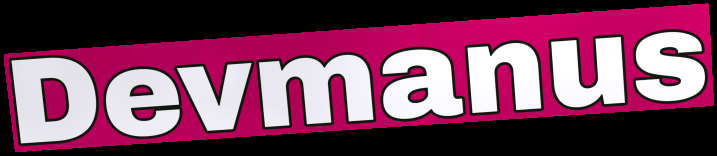
Devmanus